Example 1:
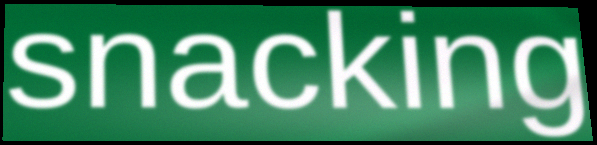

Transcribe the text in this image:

snacking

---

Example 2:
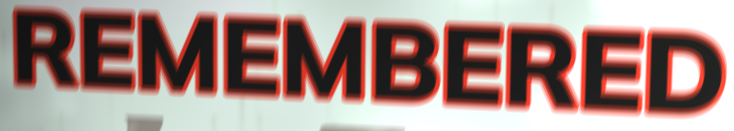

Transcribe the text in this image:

REMEMBERED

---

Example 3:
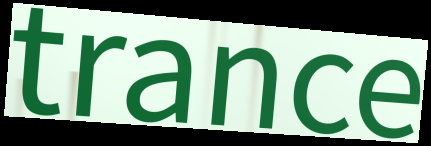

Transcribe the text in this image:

trance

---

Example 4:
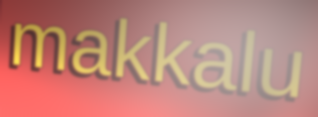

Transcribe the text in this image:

makkalu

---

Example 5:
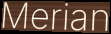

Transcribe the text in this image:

Merian